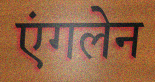
एंगलेन